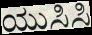
ಯುಸಿಸಿ